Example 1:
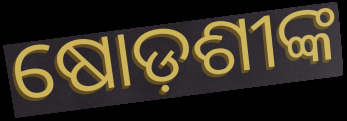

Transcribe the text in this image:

ଷୋଡ଼ଶୀଙ୍କ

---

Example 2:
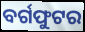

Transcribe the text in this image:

ବର୍ଗଫୁଟର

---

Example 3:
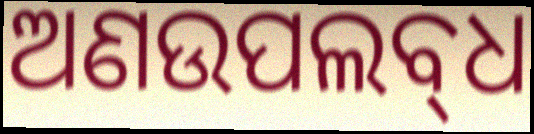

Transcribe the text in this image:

ଅଣଉପଲବ୍‌ଧ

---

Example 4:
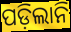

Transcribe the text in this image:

ପଡ଼ିଲାନି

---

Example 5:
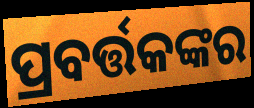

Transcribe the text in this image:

ପ୍ରବର୍ତ୍ତକଙ୍କର